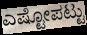
ಎಷ್ಟೋಪಟ್ಟು